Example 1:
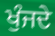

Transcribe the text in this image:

ਖੁੰਜਦੇ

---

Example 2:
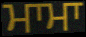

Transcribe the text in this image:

ਮਾਮਾ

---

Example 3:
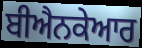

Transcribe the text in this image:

ਬੀਐਨਕੇਆਰ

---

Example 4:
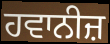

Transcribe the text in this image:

ਹਵਾਨੀਜ਼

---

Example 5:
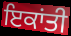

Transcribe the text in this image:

ਇਕਾਂਤੀ